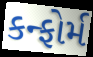
કન્ફોર્મ